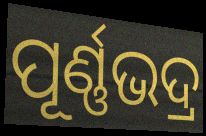
ପୂର୍ଣ୍ଣଭଦ୍ର